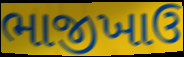
ભાજીખાઉ